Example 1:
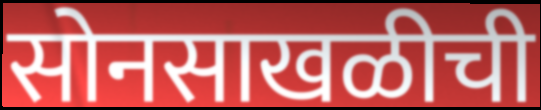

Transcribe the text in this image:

सोनसाखळीची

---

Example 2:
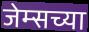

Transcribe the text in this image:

जेम्सच्या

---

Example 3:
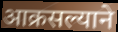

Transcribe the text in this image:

आक्रसल्याने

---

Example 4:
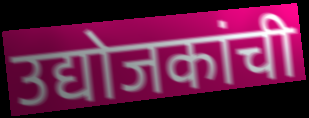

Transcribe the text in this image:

उद्योजकांची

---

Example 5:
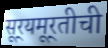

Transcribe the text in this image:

सूर्यमूर्तीची